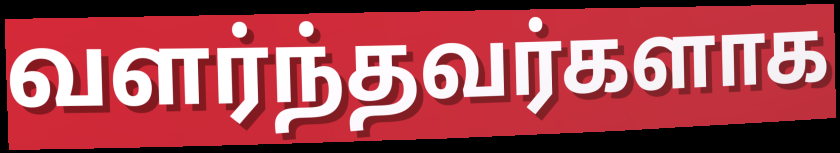
வளர்ந்தவர்களாக